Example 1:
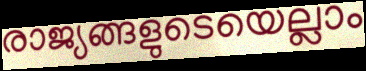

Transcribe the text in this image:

രാജ്യങ്ങളുടെയെല്ലാം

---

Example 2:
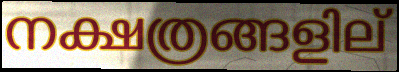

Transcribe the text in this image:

നക്ഷത്രങ്ങളില്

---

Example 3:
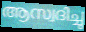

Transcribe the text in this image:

ആസ്വദിച്ചു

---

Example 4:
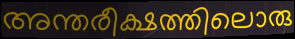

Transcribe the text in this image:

അന്തരീക്ഷത്തിലൊരു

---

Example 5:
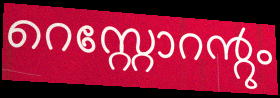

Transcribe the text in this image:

റെസ്റ്റോറന്റും